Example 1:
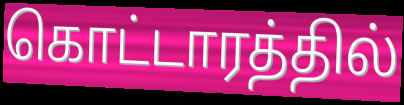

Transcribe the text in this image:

கொட்டாரத்தில்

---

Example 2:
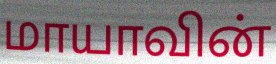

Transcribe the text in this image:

மாயாவின்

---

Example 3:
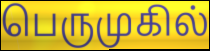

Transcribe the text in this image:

பெருமுகில்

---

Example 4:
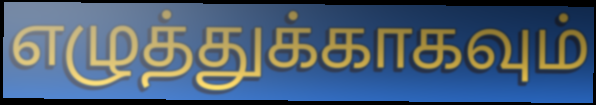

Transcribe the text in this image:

எழுத்துக்காகவும்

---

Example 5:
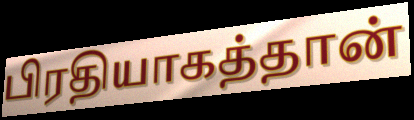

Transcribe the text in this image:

பிரதியாகத்தான்